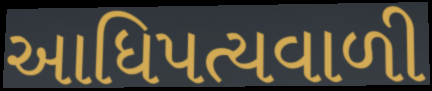
આધિપત્યવાળી